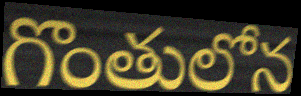
గొంతులోన